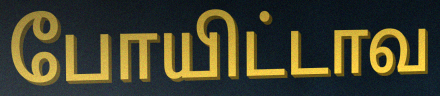
போயிட்டாவ